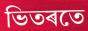
ভিতৰতে